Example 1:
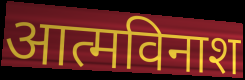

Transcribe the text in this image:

आत्मविनाश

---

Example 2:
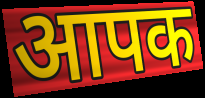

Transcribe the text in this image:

आपक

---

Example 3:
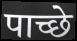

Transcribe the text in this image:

पाच्छे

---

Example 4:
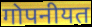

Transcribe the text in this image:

गोपनीयत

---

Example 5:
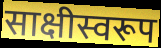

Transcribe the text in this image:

साक्षीस्वरूप